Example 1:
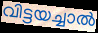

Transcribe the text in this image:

വിട്ടയച്ചാൽ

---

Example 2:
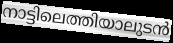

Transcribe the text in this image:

നാട്ടിലെത്തിയാലുടൻ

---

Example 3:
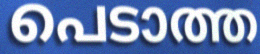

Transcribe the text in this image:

പെടാത്ത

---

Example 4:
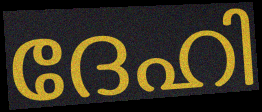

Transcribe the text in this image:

ദേഹി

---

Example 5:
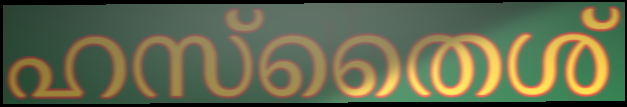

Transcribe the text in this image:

ഹസ്തൈശ്